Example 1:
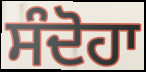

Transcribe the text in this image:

ਸੰਦੋਹਾ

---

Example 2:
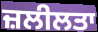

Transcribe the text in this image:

ਜ਼ਲੀਲਤਾ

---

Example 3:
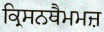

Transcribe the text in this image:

ਕ੍ਰਿਸਨਥੈਮਮਜ਼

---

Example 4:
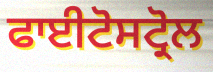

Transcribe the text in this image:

ਫਾਈਟੋਸਟ੍ਰੋਲ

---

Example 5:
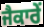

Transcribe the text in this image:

ਜੈਕਾਰੇਂ